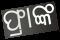
ଫ୍ରାଙ୍କ